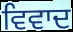
ਵਿਵਾਦ